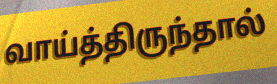
வாய்த்திருந்தால்